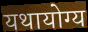
यथायोग्य